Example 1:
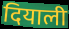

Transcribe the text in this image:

दियाली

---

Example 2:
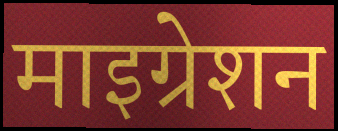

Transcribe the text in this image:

माइग्रेशन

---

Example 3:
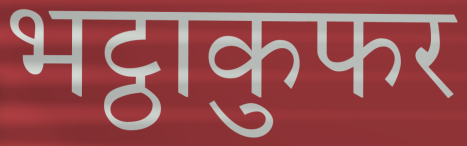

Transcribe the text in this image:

भट्ठाकुफर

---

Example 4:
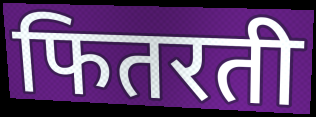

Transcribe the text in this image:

फितरती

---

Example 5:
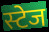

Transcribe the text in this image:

स्‍टेज